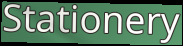
Stationery